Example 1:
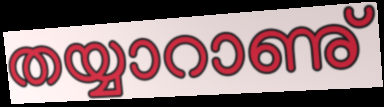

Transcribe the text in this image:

തയ്യാറാണു്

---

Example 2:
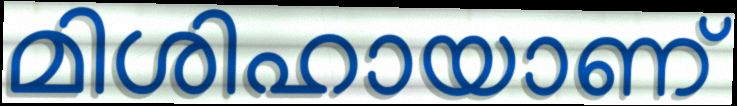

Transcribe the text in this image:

മിശിഹായാണ്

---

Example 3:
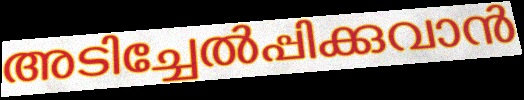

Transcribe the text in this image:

അടിച്ചേൽപ്പിക്കുവാൻ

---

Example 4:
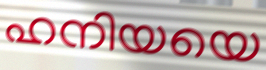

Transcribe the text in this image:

ഹനിയയെ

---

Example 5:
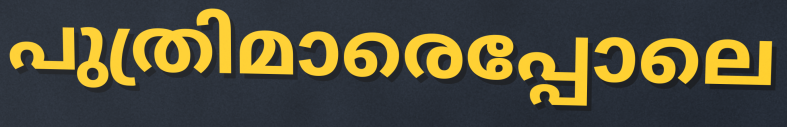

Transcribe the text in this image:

പുത്രിമാരെപ്പോലെ